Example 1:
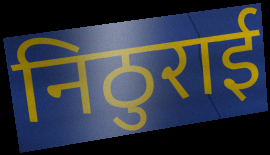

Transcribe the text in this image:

निठुराई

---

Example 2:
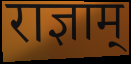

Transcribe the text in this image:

राज्ञाम्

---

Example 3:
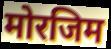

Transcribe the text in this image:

मोरजिम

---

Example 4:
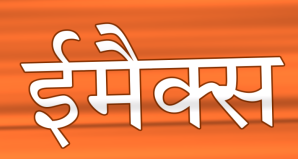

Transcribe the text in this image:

ईमैक्स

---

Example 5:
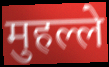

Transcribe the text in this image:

मुहल्ले